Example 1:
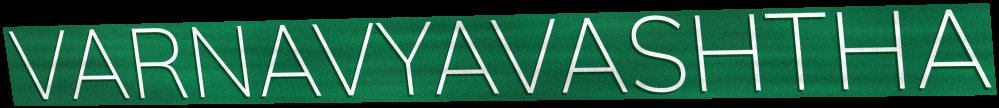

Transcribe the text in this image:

VARNAVYAVASHTHA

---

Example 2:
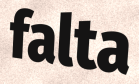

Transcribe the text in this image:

falta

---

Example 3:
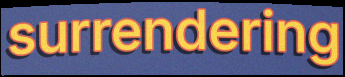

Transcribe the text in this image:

surrendering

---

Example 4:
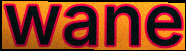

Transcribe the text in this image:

wane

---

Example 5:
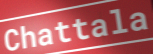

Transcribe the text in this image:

Chattala